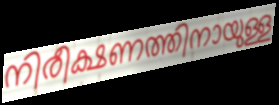
നിരീക്ഷണത്തിനായുള്ള